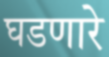
घडणारे